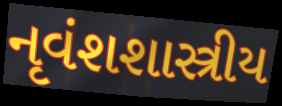
નૃવંશશાસ્ત્રીય